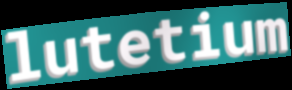
lutetium